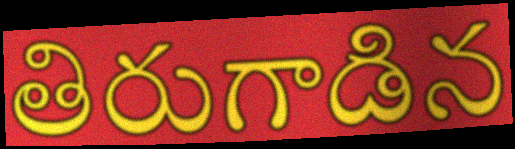
తిరుగాడిన